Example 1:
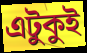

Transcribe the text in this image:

এটুকুই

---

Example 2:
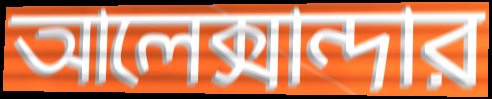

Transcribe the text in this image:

আলেক্সান্দার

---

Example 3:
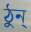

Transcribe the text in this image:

ঠুন্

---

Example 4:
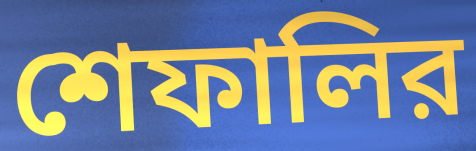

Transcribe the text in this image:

শেফালির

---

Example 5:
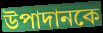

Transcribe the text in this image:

উপাদানকে